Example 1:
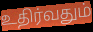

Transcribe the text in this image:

உதிர்வதும்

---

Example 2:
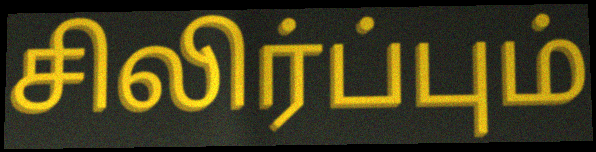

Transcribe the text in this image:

சிலிர்ப்பும்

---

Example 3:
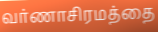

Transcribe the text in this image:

வர்ணாசிரமத்தை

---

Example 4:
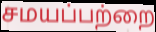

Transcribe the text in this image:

சமயப்பற்றை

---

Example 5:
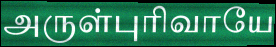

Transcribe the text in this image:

அருள்புரிவாயே